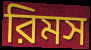
রিমস